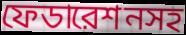
ফেডারেশনসহ